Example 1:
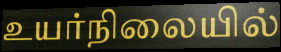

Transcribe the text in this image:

உயர்நிலையில்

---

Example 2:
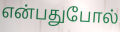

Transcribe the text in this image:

என்பதுபோல்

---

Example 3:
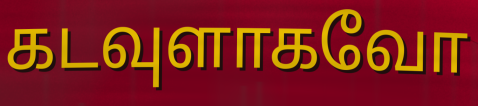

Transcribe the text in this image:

கடவுளாகவோ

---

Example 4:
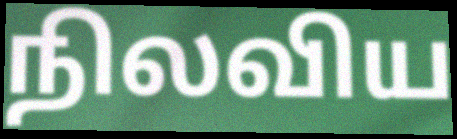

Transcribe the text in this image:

நிலவிய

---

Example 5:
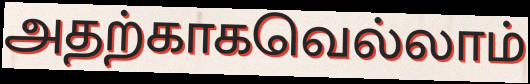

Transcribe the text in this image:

அதற்காகவெல்லாம்